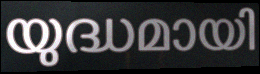
യുദ്ധമായി